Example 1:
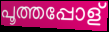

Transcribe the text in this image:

പൂത്തപ്പോള്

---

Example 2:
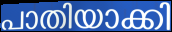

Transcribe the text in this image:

പാതിയാക്കി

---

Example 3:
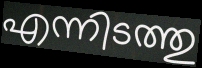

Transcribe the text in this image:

എന്നിടത്തു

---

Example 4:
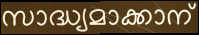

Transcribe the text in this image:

സാദ്ധ്യമാക്കാന്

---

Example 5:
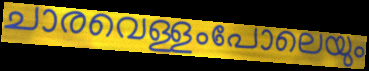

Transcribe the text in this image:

ചാരവെള്ളംപോലെയും